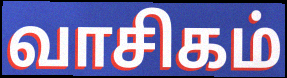
வாசிகம்